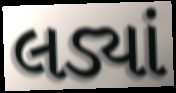
લડ્યાં